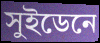
সুইডেনে